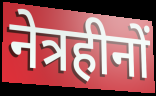
नेत्रहीनों